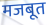
मजबूत